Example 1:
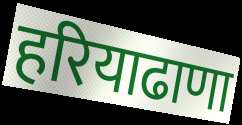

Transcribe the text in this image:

हरियाढाणा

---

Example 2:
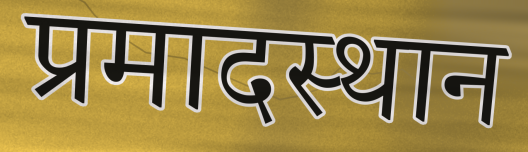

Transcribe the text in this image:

प्रमादस्थान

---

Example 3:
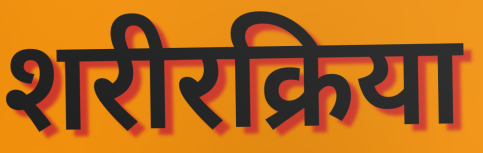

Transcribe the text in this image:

शरीरक्रिया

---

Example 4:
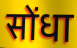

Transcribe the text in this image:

सोंधा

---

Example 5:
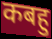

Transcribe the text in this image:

कबहु